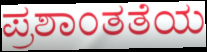
ಪ್ರಶಾಂತತೆಯ